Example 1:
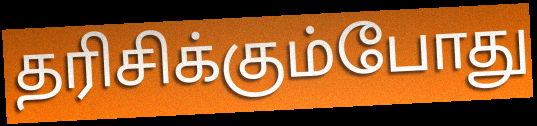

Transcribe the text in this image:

தரிசிக்கும்போது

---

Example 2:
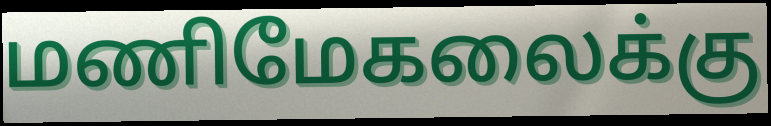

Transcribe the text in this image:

மணிமேகலைக்கு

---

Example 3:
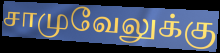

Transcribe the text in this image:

சாமுவேலுக்கு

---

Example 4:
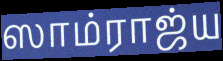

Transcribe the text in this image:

ஸாம்ராஜ்ய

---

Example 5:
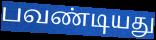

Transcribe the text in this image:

பவண்டியது